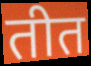
तीत